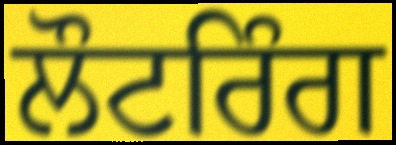
ਲੌਟਰਿੰਗ